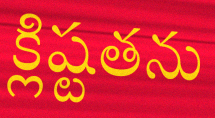
క్లిష్టతను